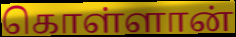
கொள்ளான்